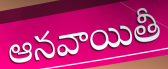
ఆనవాయితీ